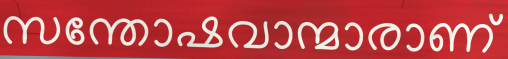
സന്തോഷവാന്മാരാണ്